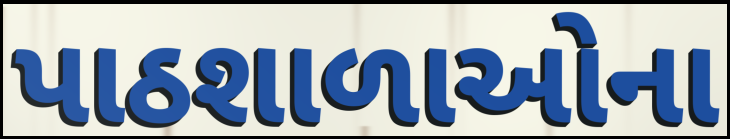
પાઠશાળાઓના